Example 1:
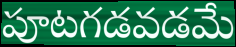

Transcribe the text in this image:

పూటగడవడమే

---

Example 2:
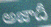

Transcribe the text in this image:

అజాదీ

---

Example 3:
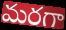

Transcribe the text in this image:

మరగా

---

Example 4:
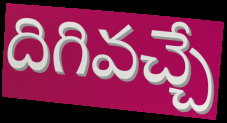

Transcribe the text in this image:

దిగివచ్చే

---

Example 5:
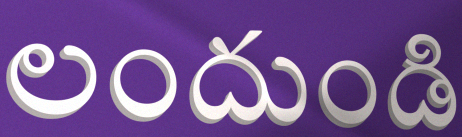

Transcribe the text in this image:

లందుండి